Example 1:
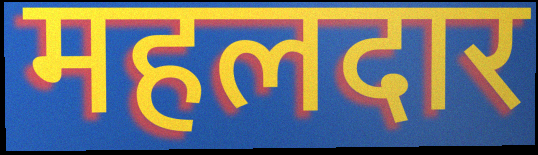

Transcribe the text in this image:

महलदार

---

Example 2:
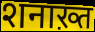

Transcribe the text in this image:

शनाख़्त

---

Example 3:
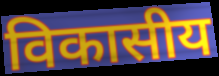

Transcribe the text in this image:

विकासीय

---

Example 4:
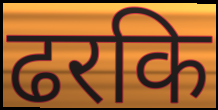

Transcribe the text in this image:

ढरकि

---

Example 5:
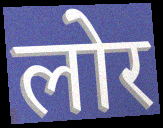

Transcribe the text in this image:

लोर